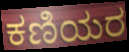
ಕಣಿಯರ